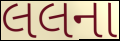
લલના